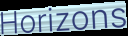
Horizons